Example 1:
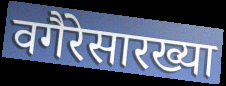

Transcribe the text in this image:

वगैरेसारख्या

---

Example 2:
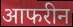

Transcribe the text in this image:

आफरीन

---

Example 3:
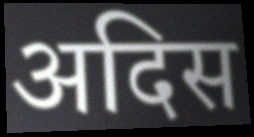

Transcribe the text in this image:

अदिस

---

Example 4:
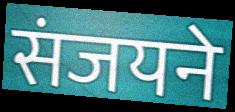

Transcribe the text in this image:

संजयने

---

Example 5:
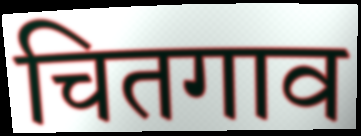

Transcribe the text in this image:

चितगाव